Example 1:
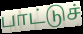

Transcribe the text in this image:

பாட்டுச்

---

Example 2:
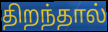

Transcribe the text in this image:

திறந்தால்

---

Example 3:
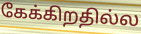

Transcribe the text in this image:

கேக்கிறதில்ல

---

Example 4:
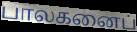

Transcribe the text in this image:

பாலகனைப்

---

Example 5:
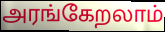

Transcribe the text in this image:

அரங்கேறலாம்